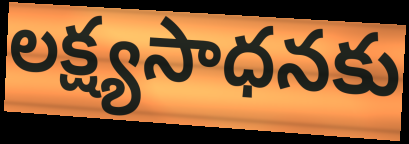
లక్ష్యసాధనకు